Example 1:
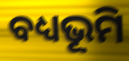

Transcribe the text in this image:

ବଧ୍ୟଭୂମି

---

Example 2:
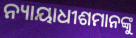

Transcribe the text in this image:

ନ୍ୟାୟାଧୀଶମାନଙ୍କୁ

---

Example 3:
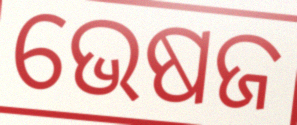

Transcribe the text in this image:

ଭେଷଜ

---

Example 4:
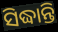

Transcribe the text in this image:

ସିଦ୍ଧାନ୍ତି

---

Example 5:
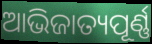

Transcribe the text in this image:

ଆଭିଜାତ୍ୟପୂର୍ଣ୍ଣ